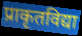
प्राकृतविद्या